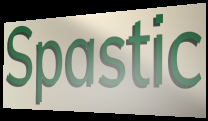
Spastic